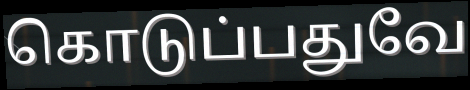
கொடுப்பதுவே